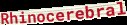
Rhinocerebral